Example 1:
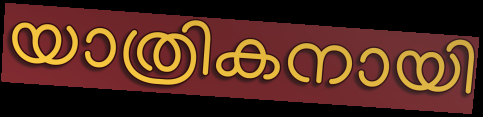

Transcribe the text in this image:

യാത്രികനായി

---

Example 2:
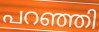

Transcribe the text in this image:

പറഞ്ഞി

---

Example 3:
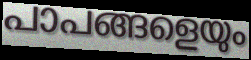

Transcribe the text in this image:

പാപങ്ങളെയും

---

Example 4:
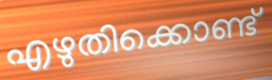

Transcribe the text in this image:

എഴുതിക്കൊണ്ട്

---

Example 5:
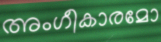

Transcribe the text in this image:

അംഗീകാരമോ